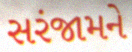
સરંજામને